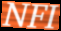
NFI